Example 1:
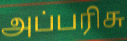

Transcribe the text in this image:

அப்பரிசு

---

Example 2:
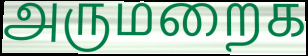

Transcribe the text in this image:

அருமறைக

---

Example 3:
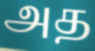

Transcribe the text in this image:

அத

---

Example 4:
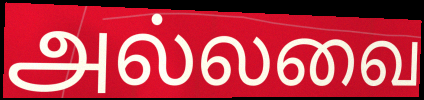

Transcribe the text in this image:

அல்லவை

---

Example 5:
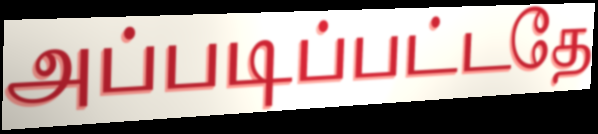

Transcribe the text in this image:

அப்படிப்பட்டதே